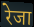
रेजा